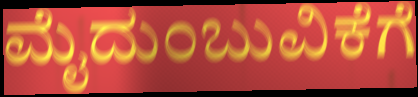
ಮೈದುಂಬುವಿಕೆಗೆ